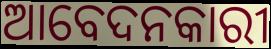
ଆବେଦନକାରୀ